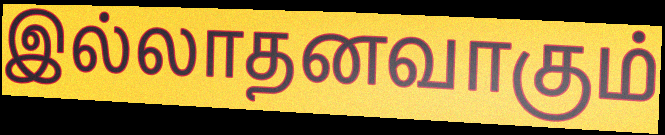
இல்லாதனவாகும்